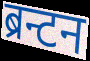
ब्रन्टन